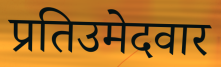
प्रतिउमेदवार